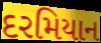
દરમિયાન